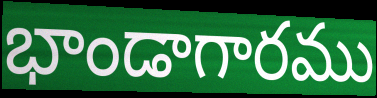
భాండాగారము